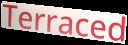
Terraced